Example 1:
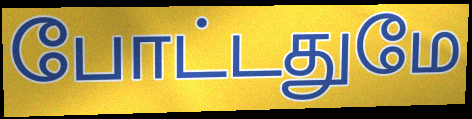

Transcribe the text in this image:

போட்டதுமே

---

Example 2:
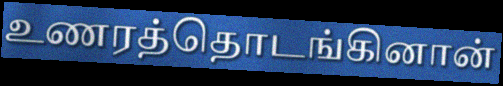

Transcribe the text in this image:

உணரத்தொடங்கினான்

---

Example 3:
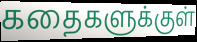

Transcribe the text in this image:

கதைகளுக்குள்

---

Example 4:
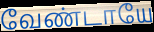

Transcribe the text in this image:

வேண்டாயே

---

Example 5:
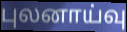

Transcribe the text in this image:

புலனாய்வு